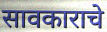
सावकाराचे